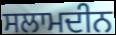
ਸਲਾਮਦੀਨ